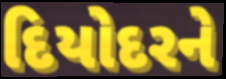
દિયોદરને